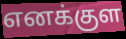
எனக்குள